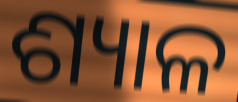
ଶ୍ୟାଳ